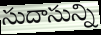
సుదాసున్ని